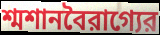
শ্মশানবৈরাগ্যের